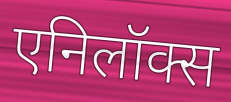
एनिलॉक्स